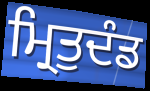
ਮ੍ਰਿਤੁਦੰਡ